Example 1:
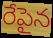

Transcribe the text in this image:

రేపైన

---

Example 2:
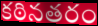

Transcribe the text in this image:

కఠినతరం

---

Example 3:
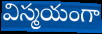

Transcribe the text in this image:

విస్మయంగా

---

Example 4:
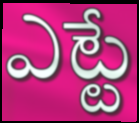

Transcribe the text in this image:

ఎట్టే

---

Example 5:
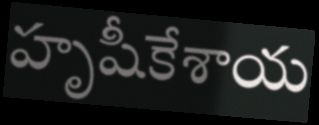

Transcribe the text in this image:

హృషీకేశాయ